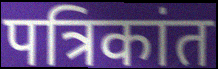
पत्रिकांत